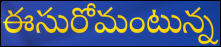
ఈసురోమంటున్న